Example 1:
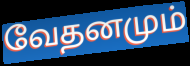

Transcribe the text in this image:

வேதனமும்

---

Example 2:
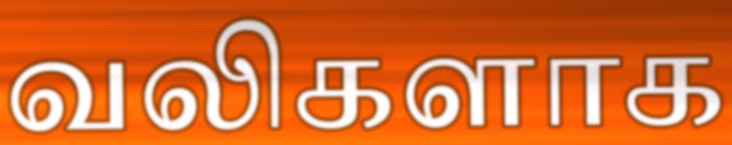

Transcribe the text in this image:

வலிகளாக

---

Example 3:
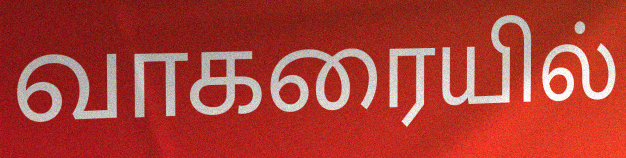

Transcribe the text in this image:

வாகரையில்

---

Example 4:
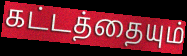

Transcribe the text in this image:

கட்டத்தையும்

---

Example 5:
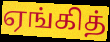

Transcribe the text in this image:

ஏங்கித்